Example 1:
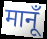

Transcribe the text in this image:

मानूँ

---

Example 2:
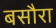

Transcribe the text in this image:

बसौरा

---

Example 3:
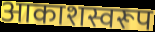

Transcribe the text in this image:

आकाशस्वरूप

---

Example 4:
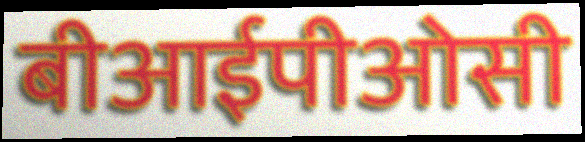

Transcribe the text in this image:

बीआईपीओसी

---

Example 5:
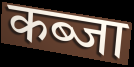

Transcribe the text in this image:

कब्‍जा